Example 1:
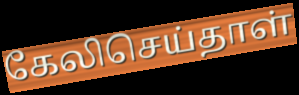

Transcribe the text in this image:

கேலிசெய்தாள்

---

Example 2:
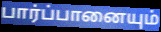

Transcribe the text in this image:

பார்ப்பானையும்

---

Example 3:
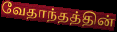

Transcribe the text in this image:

வேதாந்தத்தின்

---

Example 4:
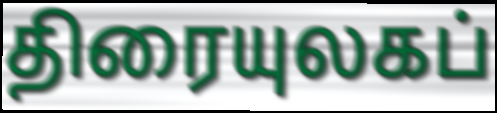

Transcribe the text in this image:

திரையுலகப்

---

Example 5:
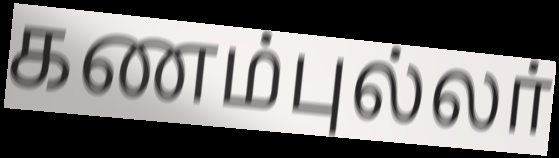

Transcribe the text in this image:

கணம்புல்லர்